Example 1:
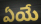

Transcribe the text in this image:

ఏయే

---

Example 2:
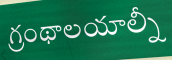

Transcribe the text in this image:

గ్రంథాలయాల్నీ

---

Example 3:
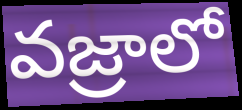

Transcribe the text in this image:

వజ్రాలో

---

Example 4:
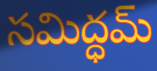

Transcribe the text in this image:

సమిద్ధమ్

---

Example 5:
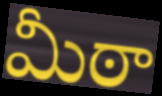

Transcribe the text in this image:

మీఠా